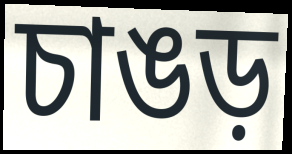
চাঙড়